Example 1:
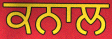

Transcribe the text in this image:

ਕਨਾਲ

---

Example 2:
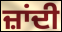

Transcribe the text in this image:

ਜ਼ਾਂਦੀ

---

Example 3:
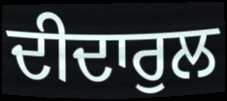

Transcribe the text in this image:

ਦੀਦਾਰੁਲ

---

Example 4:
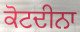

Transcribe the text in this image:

ਕੋਟਦੀਨਾ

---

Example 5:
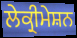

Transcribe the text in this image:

ਲੇਕ੍ਰੀਮੇਸ਼ਨ